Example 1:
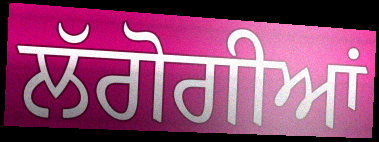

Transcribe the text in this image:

ਲੱਗੋਗੀਆਂ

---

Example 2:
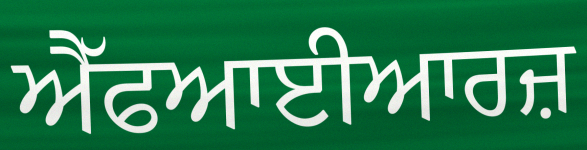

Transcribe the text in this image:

ਐੱਫਆਈਆਰਜ਼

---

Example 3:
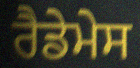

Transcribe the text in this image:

ਰੈਡੇਮੇਸ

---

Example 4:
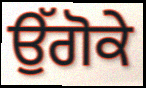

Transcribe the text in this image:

ਉੱਗੋਕੇ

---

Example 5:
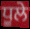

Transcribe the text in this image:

ਧੂਲੇ